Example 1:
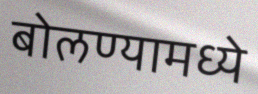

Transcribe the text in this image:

बोलण्यामध्ये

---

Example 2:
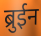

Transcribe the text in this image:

ब्रुईन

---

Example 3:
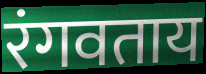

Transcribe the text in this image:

रंगवताय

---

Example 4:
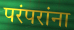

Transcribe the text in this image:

परंपरांना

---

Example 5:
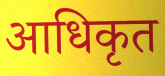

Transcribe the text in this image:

आधिकृत